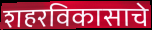
शहरविकासाचे